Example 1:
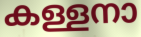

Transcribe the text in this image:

കള്ളനാ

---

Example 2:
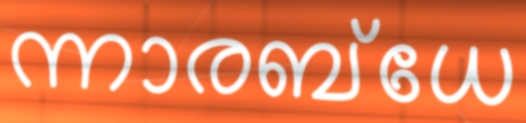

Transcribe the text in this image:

ന്നാരബ്ധേ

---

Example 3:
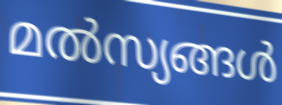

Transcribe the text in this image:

മൽസ്യങ്ങൾ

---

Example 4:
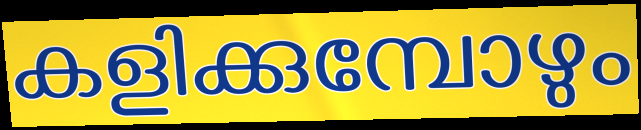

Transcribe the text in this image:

കളിക്കുമ്പോഴും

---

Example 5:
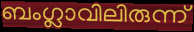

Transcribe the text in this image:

ബംഗ്ലാവിലിരുന്ന്